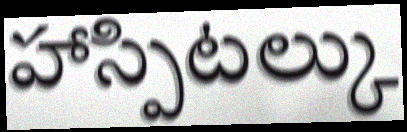
హాస్పిటల్కు